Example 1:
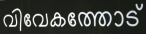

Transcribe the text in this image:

വിവേകത്തോട്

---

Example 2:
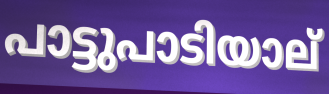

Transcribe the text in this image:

പാട്ടുപാടിയാല്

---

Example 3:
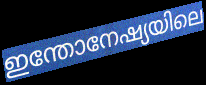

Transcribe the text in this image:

ഇന്തോനേഷ്യയിലെ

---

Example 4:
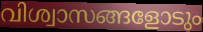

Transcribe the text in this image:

വിശ്വാസങ്ങളോടും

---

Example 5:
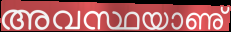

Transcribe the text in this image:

അവസ്ഥയാണു്